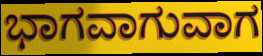
ಭಾಗವಾಗುವಾಗ